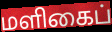
மளிகைப்